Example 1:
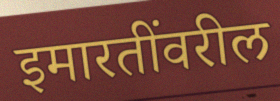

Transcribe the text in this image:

इमारतींवरील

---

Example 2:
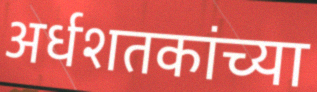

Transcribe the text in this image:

अर्धशतकांच्या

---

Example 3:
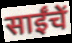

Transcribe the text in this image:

साईंचें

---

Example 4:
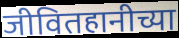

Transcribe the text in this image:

जीवितहानीच्या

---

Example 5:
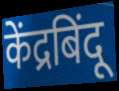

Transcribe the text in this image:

केंद्रबिंदू